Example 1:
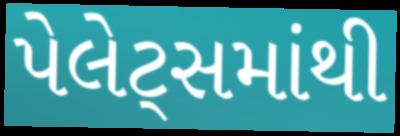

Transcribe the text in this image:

પેલેટ્સમાંથી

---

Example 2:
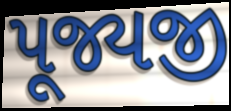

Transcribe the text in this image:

પૂજ્યજી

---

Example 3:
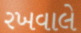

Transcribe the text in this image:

રખવાલે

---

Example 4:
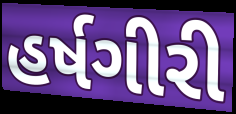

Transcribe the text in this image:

હર્ષગીરી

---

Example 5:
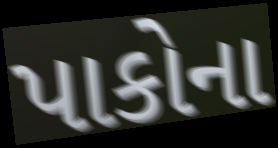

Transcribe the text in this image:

પાકોના